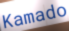
Kamado